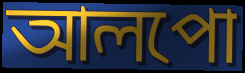
আলপো